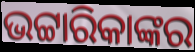
ଭଟ୍ଟାରିକାଙ୍କର